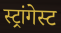
स्ट्रांगेस्ट